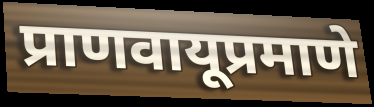
प्राणवायूप्रमाणे